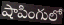
షాపింగులో